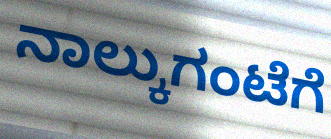
ನಾಲ್ಕುಗಂಟೆಗೆ